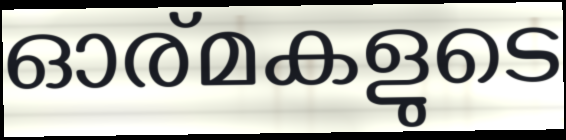
ഓര്മകളുടെ